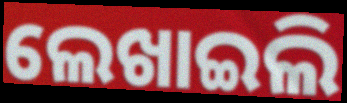
ଲେଖାଇଲି